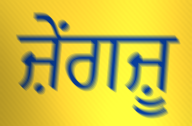
ਜ਼ੇਂਗਜ਼ੂ